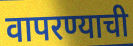
वापरण्याची